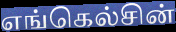
எங்கெல்சின்